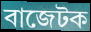
বাজেটক